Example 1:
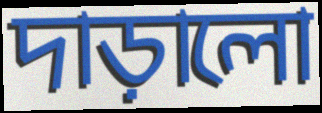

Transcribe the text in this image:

দাড়ালো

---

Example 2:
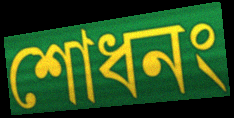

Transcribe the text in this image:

শোধনং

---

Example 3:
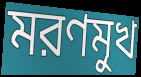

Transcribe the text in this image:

মরণমুখ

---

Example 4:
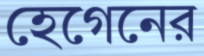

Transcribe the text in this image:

হেগেনের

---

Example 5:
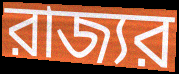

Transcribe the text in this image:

রাজ্যর